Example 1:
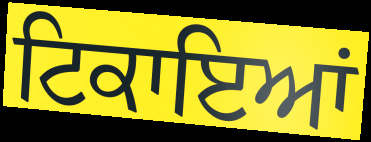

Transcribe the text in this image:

ਟਿਕਾਇਆਂ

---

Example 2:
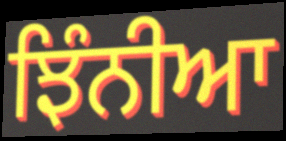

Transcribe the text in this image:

ਝਿੰਨੀਆ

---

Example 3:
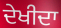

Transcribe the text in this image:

ਦੇਖੀਦਾ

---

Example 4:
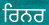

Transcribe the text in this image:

ਰਿਨਰ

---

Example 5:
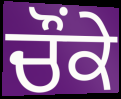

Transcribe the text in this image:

ਚੌਂਕੇ